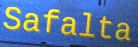
Safalta